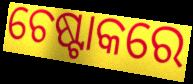
ଚେଷ୍ଟାକରେ